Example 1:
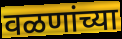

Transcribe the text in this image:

वळणांच्या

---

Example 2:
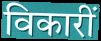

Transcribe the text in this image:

विकारीं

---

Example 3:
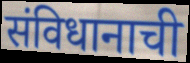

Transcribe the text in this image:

संविधानाची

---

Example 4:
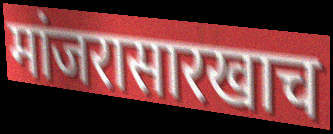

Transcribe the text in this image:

मांजरासारखाच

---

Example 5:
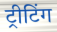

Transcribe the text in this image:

ट्रीटिंग